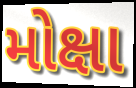
મોક્ષા